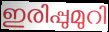
ഇരിപ്പുമുറി